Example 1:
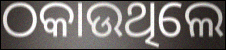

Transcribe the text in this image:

ଠକାଉଥିଲେ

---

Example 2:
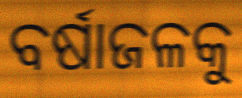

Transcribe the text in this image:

ବର୍ଷାଜଳକୁ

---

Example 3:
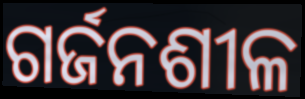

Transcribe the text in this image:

ଗର୍ଜନଶୀଳ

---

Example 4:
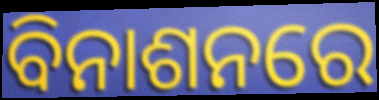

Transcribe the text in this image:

ବିନାଶନରେ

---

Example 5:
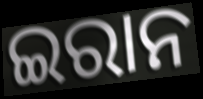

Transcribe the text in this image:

ଇରାନ